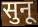
सुनू